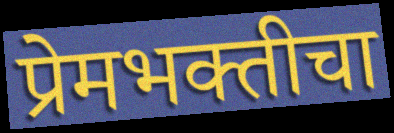
प्रेमभक्तीचा